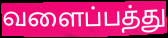
வளைப்பத்து